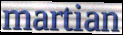
martian